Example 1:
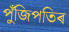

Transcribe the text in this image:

পুঁজিপতিৰ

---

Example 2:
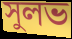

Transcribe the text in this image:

সুলভ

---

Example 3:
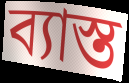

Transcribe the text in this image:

ব্যাস্ত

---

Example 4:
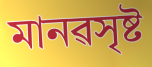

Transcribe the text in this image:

মানৱসৃষ্ট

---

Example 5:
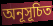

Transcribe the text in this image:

অনূসূচিত